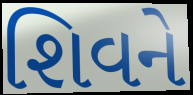
શિવને